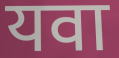
यवा